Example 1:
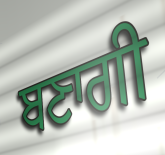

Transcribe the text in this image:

ਬਣਾਗੀ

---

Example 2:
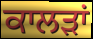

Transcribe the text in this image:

ਕਾਲੜਾਂ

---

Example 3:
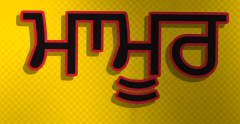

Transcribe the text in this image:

ਮਾਮੂਰ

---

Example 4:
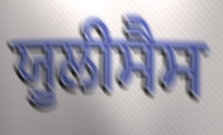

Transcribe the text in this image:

ਯੂਲੀਸੈਸ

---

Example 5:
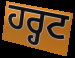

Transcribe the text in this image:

ਹਰ੍ਹਟ